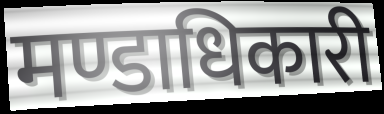
मण्डाधिकारी